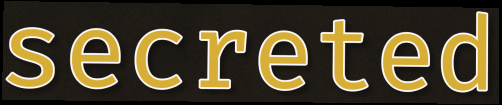
secreted